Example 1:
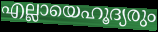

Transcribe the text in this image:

എല്ലായെഹൂദ്യരും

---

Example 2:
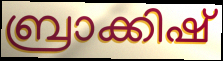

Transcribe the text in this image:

ബ്രാക്കിഷ്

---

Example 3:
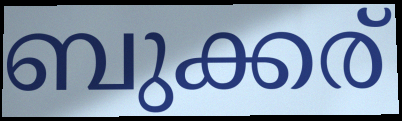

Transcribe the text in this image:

ബുക്കര്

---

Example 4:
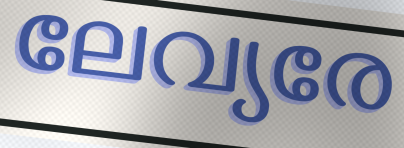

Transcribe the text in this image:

ലേവ്യരേ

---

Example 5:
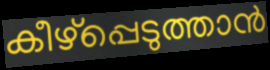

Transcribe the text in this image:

കീഴ്പ്പെടുത്താൻ